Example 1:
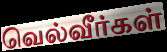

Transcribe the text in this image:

வெல்வீர்கள்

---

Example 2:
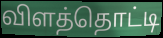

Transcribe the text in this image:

விளத்தொட்டி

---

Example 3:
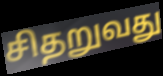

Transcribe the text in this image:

சிதறுவது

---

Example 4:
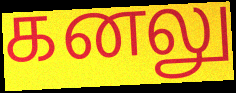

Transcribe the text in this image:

கனலு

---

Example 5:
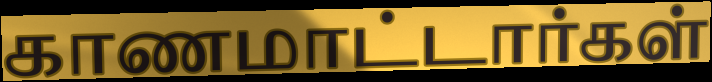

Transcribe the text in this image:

காணமாட்டார்கள்